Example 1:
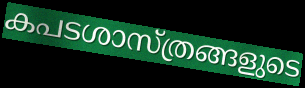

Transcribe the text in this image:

കപടശാസ്ത്രങ്ങളുടെ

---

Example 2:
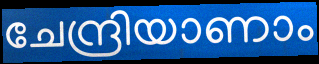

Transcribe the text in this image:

ചേന്ദ്രിയാണാം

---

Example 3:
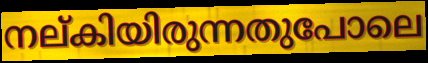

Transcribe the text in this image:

നല്കിയിരുന്നതുപോലെ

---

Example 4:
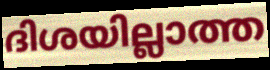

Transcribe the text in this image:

ദിശയില്ലാത്ത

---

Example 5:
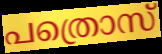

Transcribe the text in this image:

പത്രൊസ്